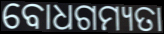
ବୋଧଗମ୍ୟତା